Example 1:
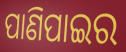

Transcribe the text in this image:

ପାଣିପାଇର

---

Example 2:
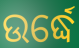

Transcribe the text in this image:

ଉର୍ଦ୍ଧେ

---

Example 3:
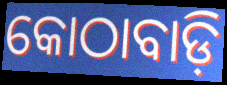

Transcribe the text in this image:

କୋଠାବାଡ଼ି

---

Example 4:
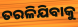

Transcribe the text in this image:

ତରଳିଯିବାକୁ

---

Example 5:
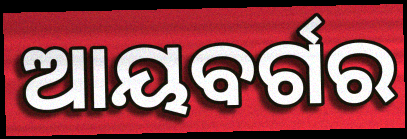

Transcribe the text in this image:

ଆୟବର୍ଗର